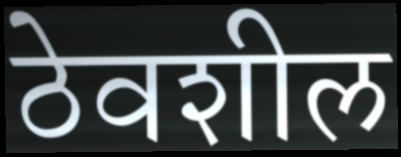
ठेवशील